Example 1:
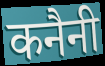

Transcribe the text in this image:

कनैनी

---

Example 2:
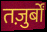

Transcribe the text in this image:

तज़ुर्बों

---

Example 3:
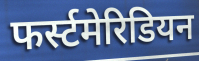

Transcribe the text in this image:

फर्स्टमेरिडियन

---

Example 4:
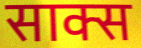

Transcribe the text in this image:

साक्स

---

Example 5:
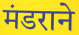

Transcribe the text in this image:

मंडराने